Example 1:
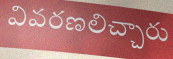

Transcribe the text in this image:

వివరణలిచ్చారు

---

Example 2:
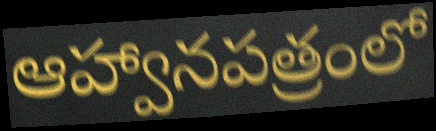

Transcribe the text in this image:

ఆహ్వానపత్రంలో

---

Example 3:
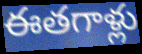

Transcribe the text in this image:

ఈతగాళ్లు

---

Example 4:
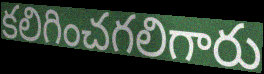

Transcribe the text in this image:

కలిగించగలిగారు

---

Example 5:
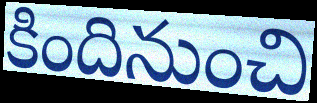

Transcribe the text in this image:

కిందినుంచి